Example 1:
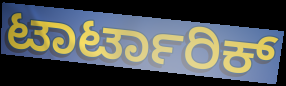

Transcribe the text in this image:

ಟಾರ್ಟಾರಿಕ್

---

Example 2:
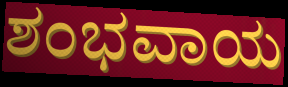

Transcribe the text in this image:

ಶಂಭವಾಯ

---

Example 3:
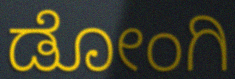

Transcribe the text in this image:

ಡೋಂಗಿ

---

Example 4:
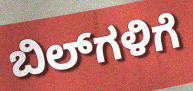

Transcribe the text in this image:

ಬಿಲ್‌ಗಳಿಗೆ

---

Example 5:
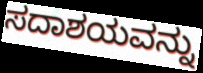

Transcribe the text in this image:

ಸದಾಶಯವನ್ನು